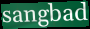
sangbad